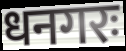
धनगरः